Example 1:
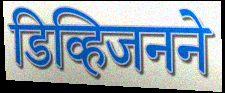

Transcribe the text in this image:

डिव्हिजनने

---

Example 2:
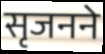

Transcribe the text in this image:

सृजनने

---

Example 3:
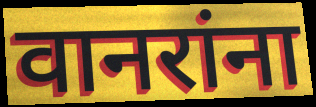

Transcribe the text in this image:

वानरांना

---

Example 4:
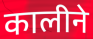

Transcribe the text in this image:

कालीने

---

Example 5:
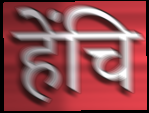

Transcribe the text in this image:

हेंचि